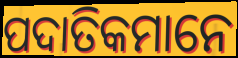
ପଦାତିକମାନେ